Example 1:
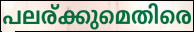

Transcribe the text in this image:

പലര്ക്കുമെതിരെ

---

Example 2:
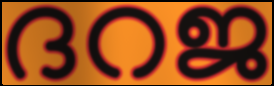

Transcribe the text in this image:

ദറജ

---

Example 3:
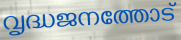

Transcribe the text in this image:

വൃദ്ധജനത്തോട്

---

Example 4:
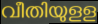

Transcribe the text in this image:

വീതിയുളള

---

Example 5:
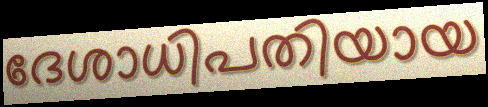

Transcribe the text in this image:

ദേശാധിപതിയായ